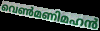
വെൺമണിമഹൻ